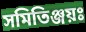
সমিতিঞ্জয়ঃ